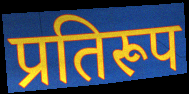
प्रतिरूप